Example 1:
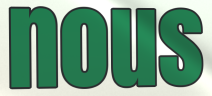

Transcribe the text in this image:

nous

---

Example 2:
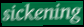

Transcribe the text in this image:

sickening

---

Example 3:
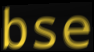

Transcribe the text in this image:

bse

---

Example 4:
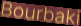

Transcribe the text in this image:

Bourbaki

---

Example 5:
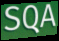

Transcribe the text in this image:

SQA